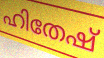
ഹിതേഷ്